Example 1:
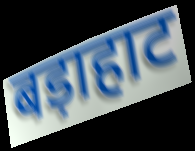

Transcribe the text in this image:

बड़ाहाट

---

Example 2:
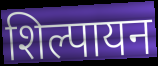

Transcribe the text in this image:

शिल्पायन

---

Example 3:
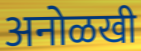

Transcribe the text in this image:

अनोळखी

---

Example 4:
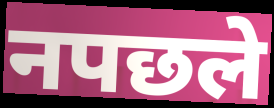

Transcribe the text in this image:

नपछले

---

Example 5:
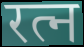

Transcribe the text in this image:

रत्न